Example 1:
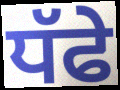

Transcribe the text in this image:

ਧੱਫੇ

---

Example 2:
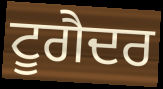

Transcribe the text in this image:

ਟੂਗੈਦਰ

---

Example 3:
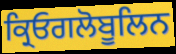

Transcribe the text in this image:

ਕ੍ਰਿਓਗਲੋਬੂਲਿਨ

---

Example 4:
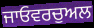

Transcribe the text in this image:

ਜਾਓਵਰਚੁਅਲ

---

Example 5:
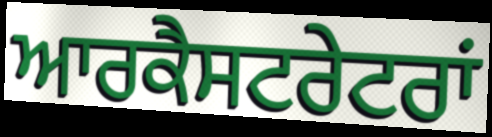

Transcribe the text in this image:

ਆਰਕੈਸਟਰੇਟਰਾਂ